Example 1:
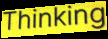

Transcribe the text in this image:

Thinking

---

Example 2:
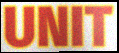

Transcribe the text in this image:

UNIT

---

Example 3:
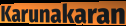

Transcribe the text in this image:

Karunakaran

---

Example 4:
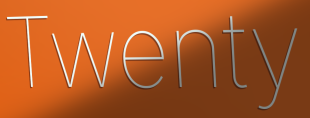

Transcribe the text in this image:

Twenty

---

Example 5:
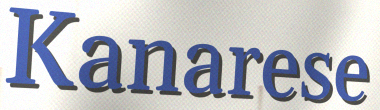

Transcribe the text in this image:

Kanarese